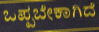
ಒಪ್ಪಬೇಕಾಗಿದೆ